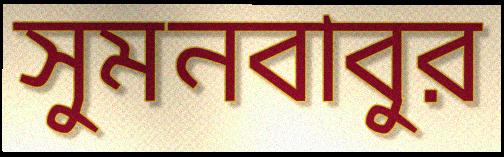
সুমনবাবুর